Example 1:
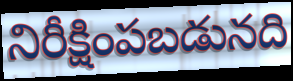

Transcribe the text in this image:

నిరీక్షింపబడునది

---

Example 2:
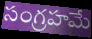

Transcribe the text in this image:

సంగ్రహమే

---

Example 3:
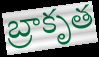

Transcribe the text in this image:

బ్రాకృత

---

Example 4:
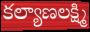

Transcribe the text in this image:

కల్యాణలక్ష్మి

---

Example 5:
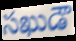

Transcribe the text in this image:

సఖుడౌ